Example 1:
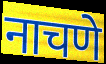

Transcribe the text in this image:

नाचणे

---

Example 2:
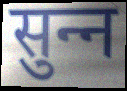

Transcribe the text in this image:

सुन्‍न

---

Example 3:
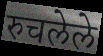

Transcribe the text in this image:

रुचलेले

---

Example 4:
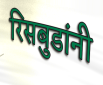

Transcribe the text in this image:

रिसबुडांनी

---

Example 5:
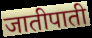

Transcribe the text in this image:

जातीपाती